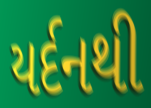
યર્દનથી